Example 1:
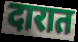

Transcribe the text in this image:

दारात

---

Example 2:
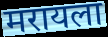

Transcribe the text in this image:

मरायला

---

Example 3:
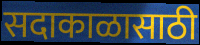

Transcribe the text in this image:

सदाकाळासाठी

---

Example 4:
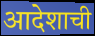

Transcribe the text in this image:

आदेशाची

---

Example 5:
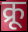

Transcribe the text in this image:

क्रू